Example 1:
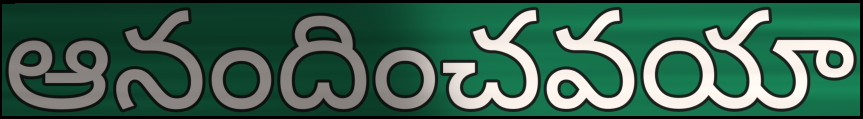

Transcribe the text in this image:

ఆనందించవయా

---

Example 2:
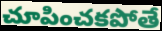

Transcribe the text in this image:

చూపించకపోతే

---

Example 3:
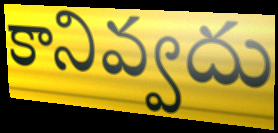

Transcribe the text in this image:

కానివ్వదు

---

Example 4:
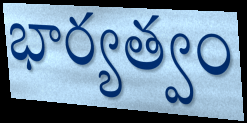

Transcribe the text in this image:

భార్యత్వం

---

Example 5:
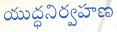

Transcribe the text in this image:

యుద్ధనిర్వహణ